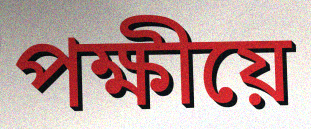
পক্ষীয়ে